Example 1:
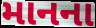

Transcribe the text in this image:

માનના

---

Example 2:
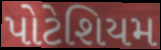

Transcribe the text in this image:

પોટેશિયમ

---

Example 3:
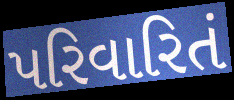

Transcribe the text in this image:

પરિવારિતં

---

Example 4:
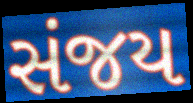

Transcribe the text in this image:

સંજય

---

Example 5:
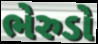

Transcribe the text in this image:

ભેરુડો